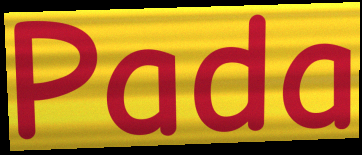
Pada